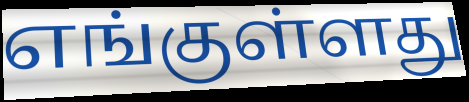
எங்குள்ளது